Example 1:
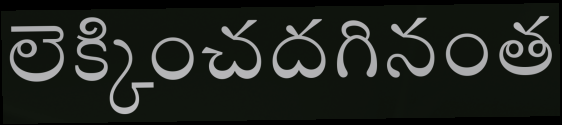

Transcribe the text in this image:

లెక్కించదగినంత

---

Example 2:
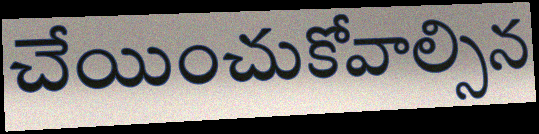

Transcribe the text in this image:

చేయించుకోవాల్సిన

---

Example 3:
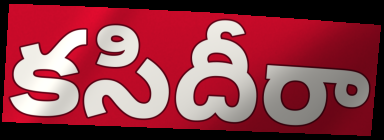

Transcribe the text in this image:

కసిదీరా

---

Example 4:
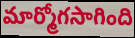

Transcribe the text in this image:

మార్మోగసాగింది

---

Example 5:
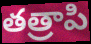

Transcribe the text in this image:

తత్రాపి